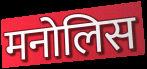
मनोलिस